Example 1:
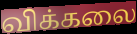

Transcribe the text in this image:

விக்கலை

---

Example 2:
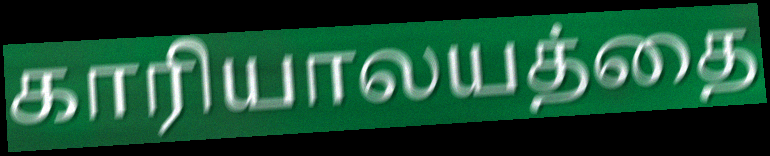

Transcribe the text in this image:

காரியாலயத்தை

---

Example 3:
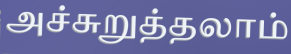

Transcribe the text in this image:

அச்சுறுத்தலாம்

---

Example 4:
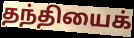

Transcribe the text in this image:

தந்தியைக்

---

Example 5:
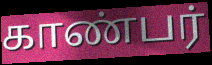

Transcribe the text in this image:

காண்பர்